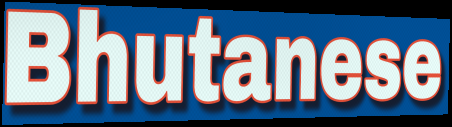
Bhutanese